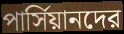
পার্সিয়ানদের